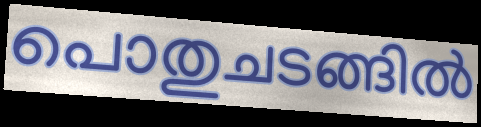
പൊതുചടങ്ങിൽ